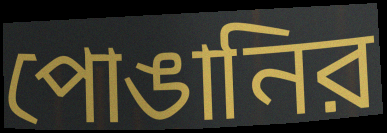
পোঙানির